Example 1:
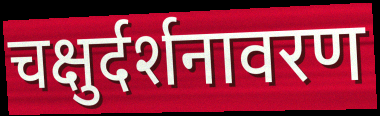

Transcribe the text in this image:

चक्षुर्दर्शनावरण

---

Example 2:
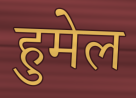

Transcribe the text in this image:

हुमेल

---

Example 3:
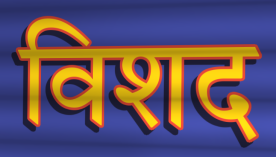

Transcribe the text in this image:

विशद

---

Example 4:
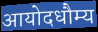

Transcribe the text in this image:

आयोदधौम्य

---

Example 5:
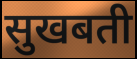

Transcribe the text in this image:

सुखबती